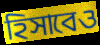
হিসাবেও